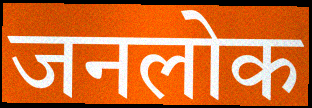
जनलोक